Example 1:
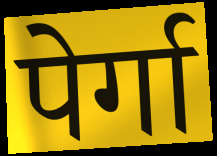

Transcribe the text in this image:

पेर्गा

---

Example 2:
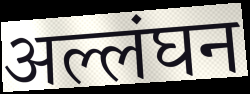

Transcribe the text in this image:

अल्लंघन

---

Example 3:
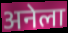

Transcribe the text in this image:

अनेला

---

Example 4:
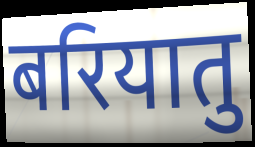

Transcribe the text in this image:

बरियातु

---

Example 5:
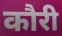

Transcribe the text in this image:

कौरी